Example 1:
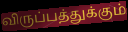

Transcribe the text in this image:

விருப்பத்துக்கும்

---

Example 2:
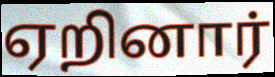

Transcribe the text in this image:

ஏறினார்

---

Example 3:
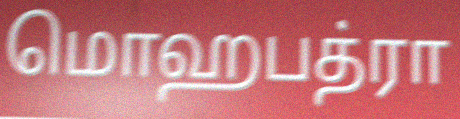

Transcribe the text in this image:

மொஹபத்ரா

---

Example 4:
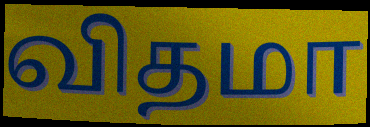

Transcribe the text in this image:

விதமா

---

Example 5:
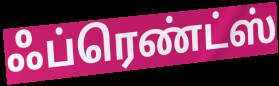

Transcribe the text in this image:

ஃப்ரெண்ட்ஸ்